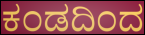
ಕಂಡದಿಂದ